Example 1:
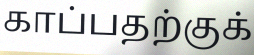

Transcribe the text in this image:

காப்பதற்குக்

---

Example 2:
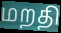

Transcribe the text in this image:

மறதி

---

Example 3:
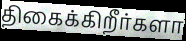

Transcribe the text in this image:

திகைக்கிறீர்களா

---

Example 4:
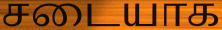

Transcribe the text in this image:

சடையாக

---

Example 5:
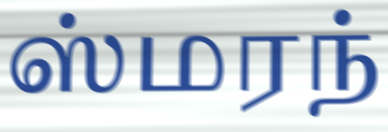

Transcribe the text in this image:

ஸ்மரந்